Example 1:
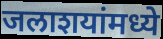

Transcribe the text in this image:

जलाशयांमध्ये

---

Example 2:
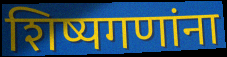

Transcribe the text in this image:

शिष्यगणांना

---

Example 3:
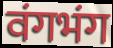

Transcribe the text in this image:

वंगभंग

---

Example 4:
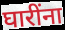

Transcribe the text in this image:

घारींना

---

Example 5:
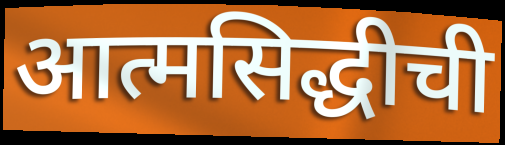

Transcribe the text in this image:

आत्मसिद्धीची